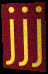
jjj